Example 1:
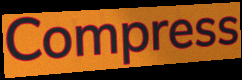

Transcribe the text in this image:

Compress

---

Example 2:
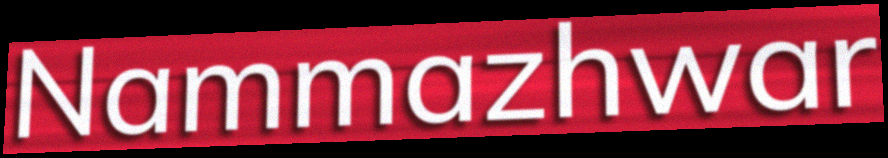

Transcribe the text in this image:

Nammazhwar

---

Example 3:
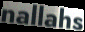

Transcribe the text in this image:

nallahs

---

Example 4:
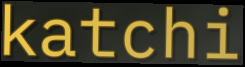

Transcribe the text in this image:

katchi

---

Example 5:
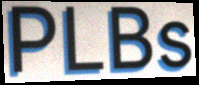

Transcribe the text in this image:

PLBs